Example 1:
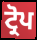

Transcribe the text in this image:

ਟ੍ਰੋਪ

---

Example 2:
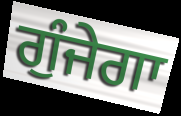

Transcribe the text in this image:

ਗੁੰਜੇਗਾ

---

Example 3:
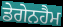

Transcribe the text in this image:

ਡੇਗੇਨਹੈਮ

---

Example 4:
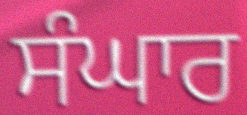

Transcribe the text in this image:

ਸੰਘਾਰ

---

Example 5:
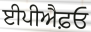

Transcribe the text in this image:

ਈਪੀਐਫ਼ਓ